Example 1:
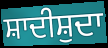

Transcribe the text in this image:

ਸ਼ਾਦੀਸ਼ੁਦਾ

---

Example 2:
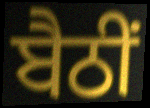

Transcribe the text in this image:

ਬੈਠੀਂ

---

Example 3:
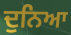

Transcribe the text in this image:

ਦੁਨਿਆ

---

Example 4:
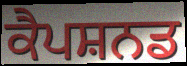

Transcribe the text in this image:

ਕੈਪਸ਼ਨਡ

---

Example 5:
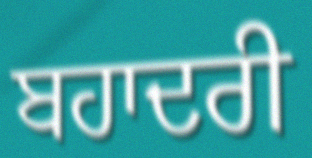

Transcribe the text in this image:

ਬਹਾਦਰੀ